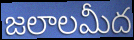
జలాలమీద